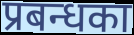
प्रबन्धका